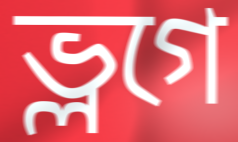
ভ্লগে